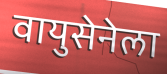
वायुसेनेला